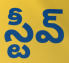
స్టీవ్